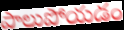
పాలుపోయడం